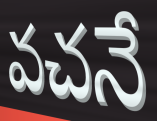
వచనే